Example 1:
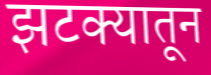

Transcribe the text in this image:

झटक्यातून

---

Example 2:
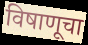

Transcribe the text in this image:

विषाणूचा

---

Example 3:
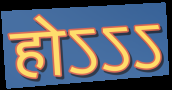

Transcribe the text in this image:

होऽऽऽ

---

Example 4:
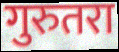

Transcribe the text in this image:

गुरुतरा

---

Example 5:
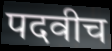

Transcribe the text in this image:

पदवीच